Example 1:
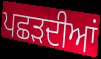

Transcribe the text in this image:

ਪਛੜਦੀਆਂ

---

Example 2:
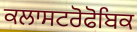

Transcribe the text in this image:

ਕਲਾਸਟਰੋਫੋਬਿਕ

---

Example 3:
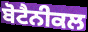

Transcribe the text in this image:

ਬੋਟੈਨੀਕਲ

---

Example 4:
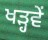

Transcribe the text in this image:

ਖੜ੍ਹਵੇਂ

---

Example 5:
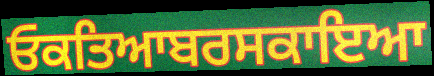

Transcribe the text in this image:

ਓਕਤਿਆਬਰਸਕਾਇਆ